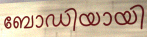
ബോഡിയായി